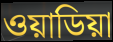
ওয়াডিয়া